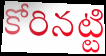
కోరినట్టి